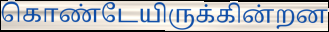
கொண்டேயிருக்கின்றன